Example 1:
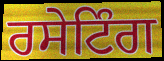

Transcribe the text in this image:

ਰਸੇਟਿੰਗ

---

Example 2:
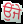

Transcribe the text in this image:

ਉਂਜੇ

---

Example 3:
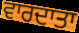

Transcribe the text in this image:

ਵਾਰਦਾਤਾ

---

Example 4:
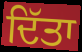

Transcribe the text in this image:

ਦਿੱਤਾ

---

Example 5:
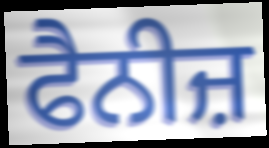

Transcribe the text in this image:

ਫੈਨੀਜ਼